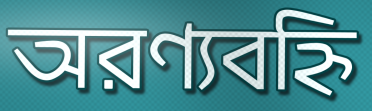
অরণ্যবহ্নি